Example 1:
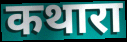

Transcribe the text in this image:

कथारा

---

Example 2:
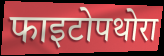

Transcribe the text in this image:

फाइटोपथोरा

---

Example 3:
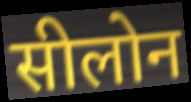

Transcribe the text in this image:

सीलोन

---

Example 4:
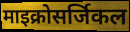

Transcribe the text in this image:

माइक्रोसर्जिकल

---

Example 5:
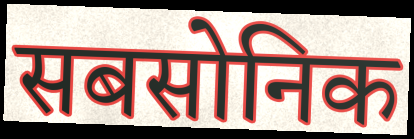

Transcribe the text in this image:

सबसोनिक